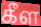
கீள